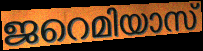
ജറെമിയാസ്